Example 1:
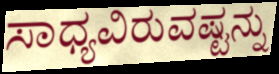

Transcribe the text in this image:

ಸಾಧ್ಯವಿರುವಷ್ಟನ್ನು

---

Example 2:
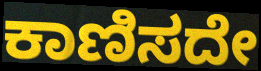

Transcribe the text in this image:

ಕಾಣಿಸದೇ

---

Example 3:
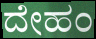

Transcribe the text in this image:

ದೇಹಂ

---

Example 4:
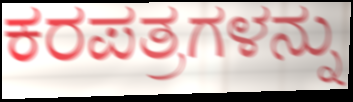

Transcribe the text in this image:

ಕರಪತ್ರಗಳನ್ನು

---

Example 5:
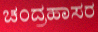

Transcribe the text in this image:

ಚಂದ್ರಹಾಸರ